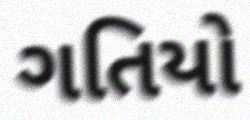
ગતિયો